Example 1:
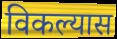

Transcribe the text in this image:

विकल्यास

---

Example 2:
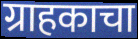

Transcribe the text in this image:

ग्राहकाचा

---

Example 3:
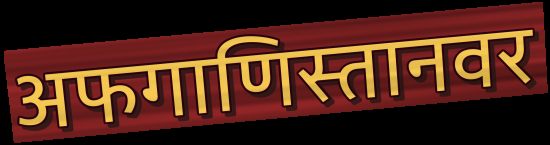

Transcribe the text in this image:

अफगाणिस्तानवर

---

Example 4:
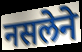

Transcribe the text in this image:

नसलेने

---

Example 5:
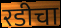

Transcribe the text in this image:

रडीचा